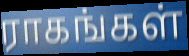
ராகங்கள்